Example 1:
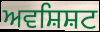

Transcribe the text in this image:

ਅਵਸ਼ਿਸ਼ਟ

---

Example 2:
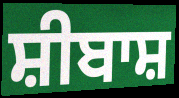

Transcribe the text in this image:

ਸ਼ੀਬਾਸ਼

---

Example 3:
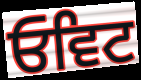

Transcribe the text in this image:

ਓਵਿਟ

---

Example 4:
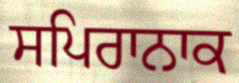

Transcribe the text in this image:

ਸਪਿਰਾਨਾਕ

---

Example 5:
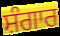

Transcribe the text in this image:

ਸ਼ੰਗਾਰ